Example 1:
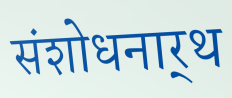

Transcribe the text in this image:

संशोधनार्थ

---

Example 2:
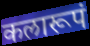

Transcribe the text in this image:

कलारूपं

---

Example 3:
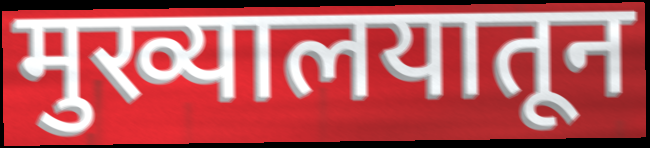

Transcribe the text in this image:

मुख्यालयातून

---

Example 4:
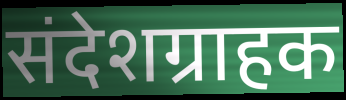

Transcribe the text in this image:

संदेशग्राहक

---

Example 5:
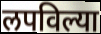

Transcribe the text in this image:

लपविल्या